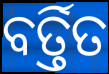
ବର୍ତ୍ତିତ